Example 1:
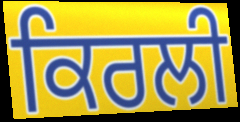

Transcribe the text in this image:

ਕਿਰਲੀ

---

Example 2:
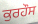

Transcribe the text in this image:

ਕੁਰਹੌਸ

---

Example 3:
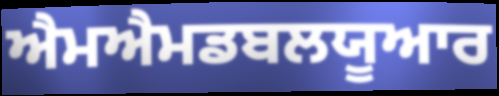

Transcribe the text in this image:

ਐਮਐਮਡਬਲਯੂਆਰ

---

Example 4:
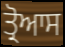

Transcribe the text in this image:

ਤ੍ਰੋਆਸ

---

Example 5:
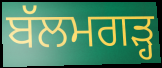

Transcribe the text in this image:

ਬੱਲਮਗੜ੍ਹ